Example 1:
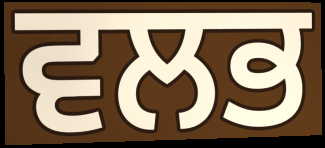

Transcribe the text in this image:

ਵਲਭ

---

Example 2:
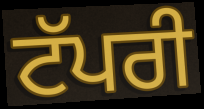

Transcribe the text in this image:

ਟੱਪਰੀ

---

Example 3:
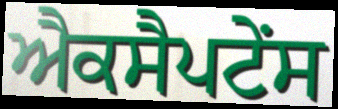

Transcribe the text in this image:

ਐਕਸੈਪਟੇਂਸ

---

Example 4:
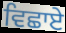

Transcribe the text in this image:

ਵਿਛਾਏ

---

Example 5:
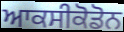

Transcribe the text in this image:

ਆਕਸੀਕੋਡੋਨ